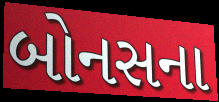
બોનસના